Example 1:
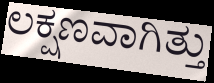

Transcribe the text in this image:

ಲಕ್ಷಣವಾಗಿತ್ತು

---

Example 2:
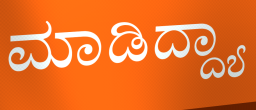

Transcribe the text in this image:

ಮಾಡಿದ್ದ್ಯಾ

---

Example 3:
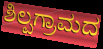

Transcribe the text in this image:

ಶಿಲ್ಪಗ್ರಾಮದ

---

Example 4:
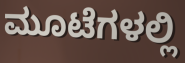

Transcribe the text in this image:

ಮೂಟೆಗಳಲ್ಲಿ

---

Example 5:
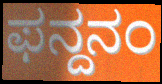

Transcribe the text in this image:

ಫನ್ದನಂ